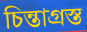
চিন্তাগ্রস্ত